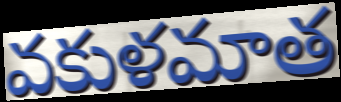
వకుళమాత